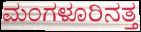
ಮಂಗಳೂರಿನತ್ತ